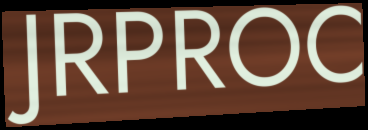
JRPROC